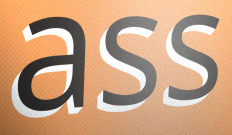
ass